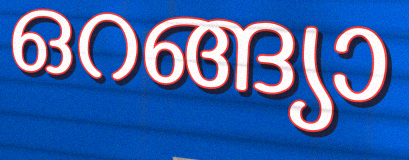
ഒറങ്ങ്യാ